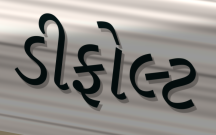
ડીફોલ્ટ